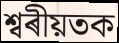
শ্বৰীয়তক